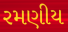
રમણીય